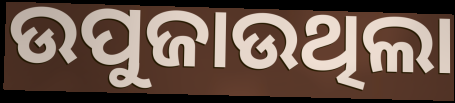
ଉପୁଜାଉଥିଲା